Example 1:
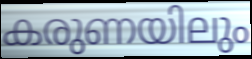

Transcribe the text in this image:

കരുണയിലും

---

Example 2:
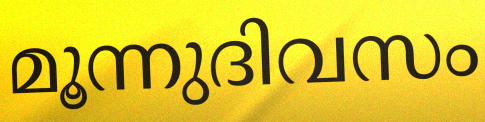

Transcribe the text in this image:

മൂന്നുദിവസം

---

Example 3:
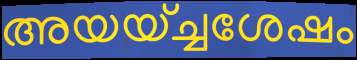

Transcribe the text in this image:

അയയ്ച്ചശേഷം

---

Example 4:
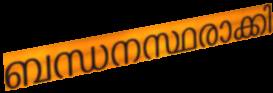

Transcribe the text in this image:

ബന്ധനസ്ഥരാക്കി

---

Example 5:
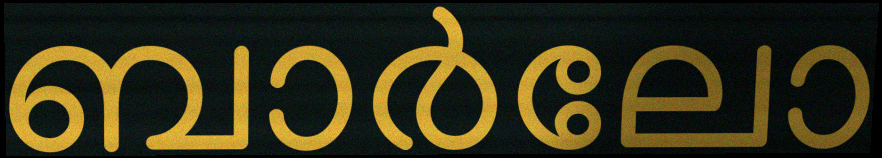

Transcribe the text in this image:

ബാർലോ